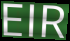
EIR